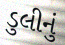
ડુલીનું